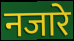
नजारे